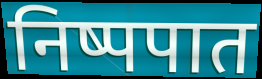
निष्पपात